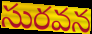
సురవన